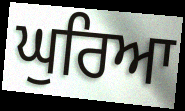
ਘੁਰਿਆ